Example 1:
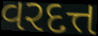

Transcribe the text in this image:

વરદત્ત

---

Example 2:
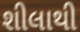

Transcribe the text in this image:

શીલાથી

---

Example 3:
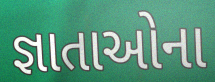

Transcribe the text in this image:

જ્ઞાતાઓના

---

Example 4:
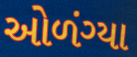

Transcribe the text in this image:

ઓળંગ્યા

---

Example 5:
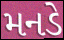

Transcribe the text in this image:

મનડે